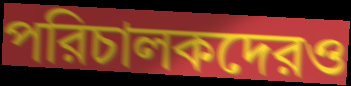
পরিচালকদেরও